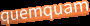
quemquam